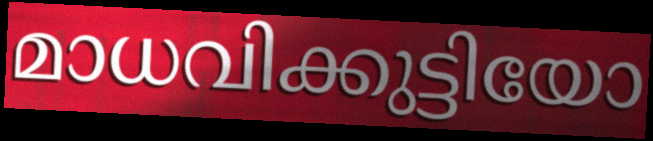
മാധവിക്കുട്ടിയോ